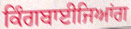
ਕਿੰਗਬਾਈਜਿਆਂਗ